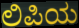
ಲಿಪಿಯ